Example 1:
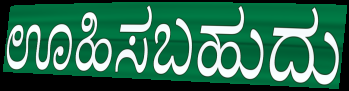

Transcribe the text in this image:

ಊಹಿಸಬಹುದು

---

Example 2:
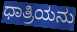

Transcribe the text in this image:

ಧಾತ್ರಿಯನು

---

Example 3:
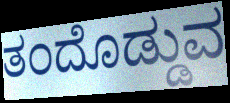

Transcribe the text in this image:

ತಂದೊಡ್ಡುವ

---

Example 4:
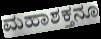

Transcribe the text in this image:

ಮಹಾಶಕ್ತನೂ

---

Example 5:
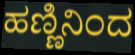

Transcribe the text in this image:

ಹಣ್ಣಿನಿಂದ